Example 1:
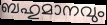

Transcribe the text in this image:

ബഹുമാനവും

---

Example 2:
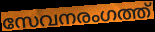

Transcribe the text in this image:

സേവനരംഗത്ത്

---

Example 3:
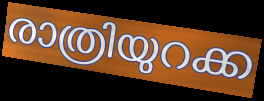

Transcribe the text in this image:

രാത്രിയുറക്ക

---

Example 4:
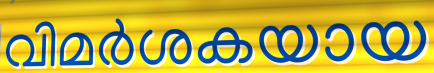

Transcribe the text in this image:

വിമർശകയായ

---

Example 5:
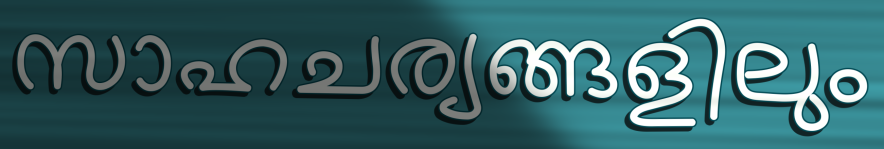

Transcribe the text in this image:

സാഹചര്യങ്ങളിലും